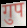
गुप